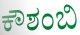
ಕೌಶಂಬಿ